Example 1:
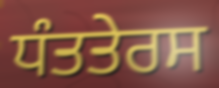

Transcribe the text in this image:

ਧੰਤਤੇਰਸ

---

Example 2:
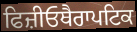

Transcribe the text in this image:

ਫਿਜ਼ੀਓਥੈਰਾਪਟਿਕ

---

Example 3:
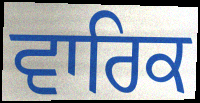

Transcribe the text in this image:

ਵਾਰਿਕ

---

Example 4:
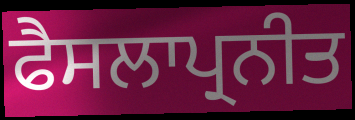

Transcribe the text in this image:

ਫੈਸਲਾਪ੍ਰਨੀਤ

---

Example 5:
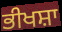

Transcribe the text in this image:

ਭੀਖਸ਼ਾ